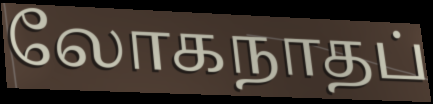
லோகநாதப்